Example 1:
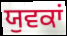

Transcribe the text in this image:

ਯੁਵਕਾਂ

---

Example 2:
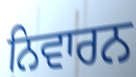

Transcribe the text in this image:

ਨਿਵਾਰਨ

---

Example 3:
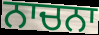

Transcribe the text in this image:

ਨਾਚਨਾ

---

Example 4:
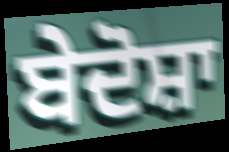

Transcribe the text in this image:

ਬੇਦੋਸ਼ਾ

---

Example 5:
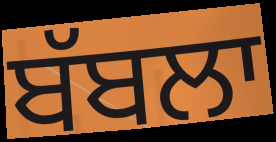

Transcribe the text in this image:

ਬੱਬਲਾ